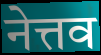
नेत्तव